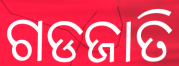
ଗଡଜାତି